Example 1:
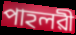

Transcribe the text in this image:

পাহলৱী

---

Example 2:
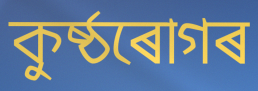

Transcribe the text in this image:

কুষ্ঠৰোগৰ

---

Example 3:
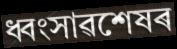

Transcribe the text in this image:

ধ্বংসাৱশেষৰ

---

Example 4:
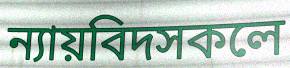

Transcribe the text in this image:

ন্যায়বিদসকলে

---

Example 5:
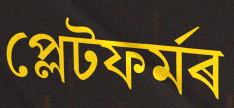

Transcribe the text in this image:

প্লেটফৰ্মৰ